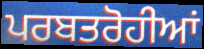
ਪਰਬਤਰੋਹੀਆਂ